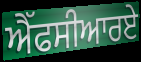
ਐੱਫਸੀਆਰਏ